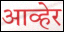
आव्हेर